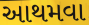
આથમવા